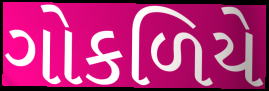
ગોકળિયે